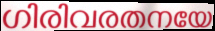
ഗിരിവരതനയേ